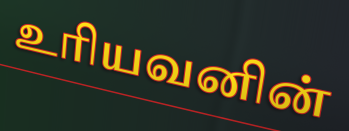
உரியவனின்